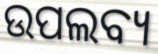
ଉପଲବ୍ୟ